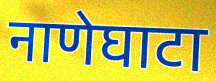
नाणेघाटा